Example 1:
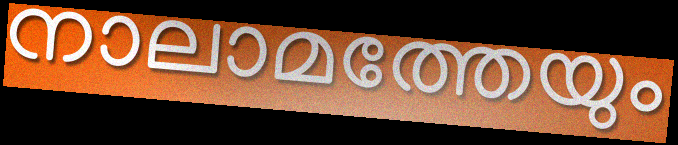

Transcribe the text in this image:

നാലാമത്തേയും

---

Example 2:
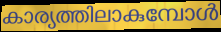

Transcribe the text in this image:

കാര്യത്തിലാകുമ്പോൾ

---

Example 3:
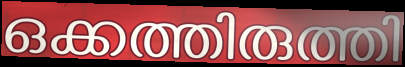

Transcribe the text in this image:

ഒക്കത്തിരുത്തി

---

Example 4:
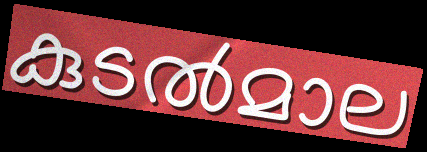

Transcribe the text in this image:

കുടൽമാല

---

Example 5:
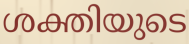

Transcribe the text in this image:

ശക്തിയുടെ